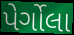
પેર્ગોલા